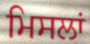
ਮਿਸਲਾਂ